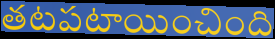
తటపటాయించింది